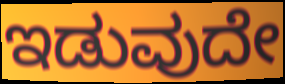
ಇಡುವುದೇ